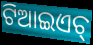
ଟିଆଇଏଚ୍